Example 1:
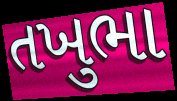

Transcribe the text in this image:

તખુભા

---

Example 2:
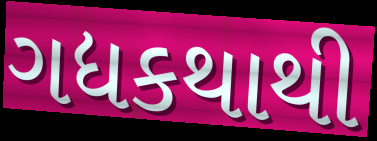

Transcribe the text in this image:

ગદ્યકથાથી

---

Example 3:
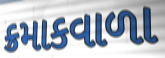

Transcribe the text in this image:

ક્રમાકવાળા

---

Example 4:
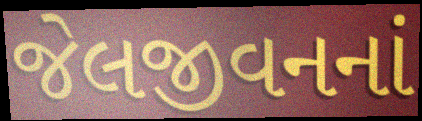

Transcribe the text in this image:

જેલજીવનનાં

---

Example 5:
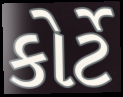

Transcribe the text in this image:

કોર્ટે